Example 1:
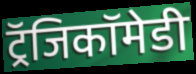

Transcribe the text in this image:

ट्रॅजिकॉमेडी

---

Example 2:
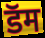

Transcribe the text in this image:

डॅम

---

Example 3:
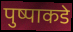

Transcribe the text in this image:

पुष्पाकडे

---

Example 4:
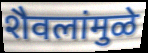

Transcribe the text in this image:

शैवलांमुळे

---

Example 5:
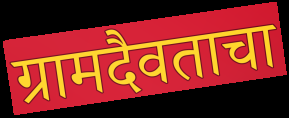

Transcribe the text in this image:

ग्रामदैवताचा